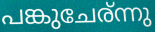
പങ്കുചേര്ന്നു